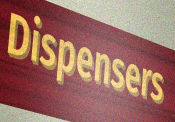
Dispensers